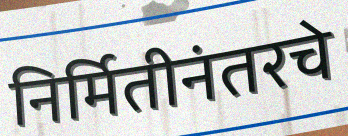
निर्मितीनंतरचे